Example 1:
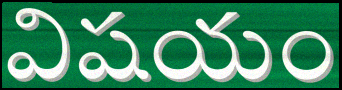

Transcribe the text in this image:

విషయం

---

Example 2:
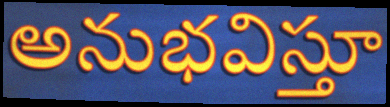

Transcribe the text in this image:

అనుభవిస్తూ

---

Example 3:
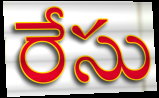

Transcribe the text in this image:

రేసు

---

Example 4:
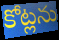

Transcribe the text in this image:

కోట్లను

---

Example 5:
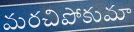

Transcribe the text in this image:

మరచిపోకుమా